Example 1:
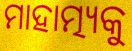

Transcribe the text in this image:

ମାହାତ୍ମ୍ୟକୁ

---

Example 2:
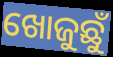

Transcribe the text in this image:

ଖୋଜୁଛୁଁ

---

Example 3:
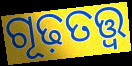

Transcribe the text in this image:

ଗୂଢ଼ତତ୍ତ୍ୱ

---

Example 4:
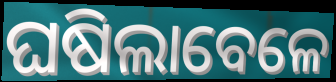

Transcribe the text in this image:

ଘଷିଲାବେଳେ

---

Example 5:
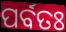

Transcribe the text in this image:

ପର୍ବତଃ